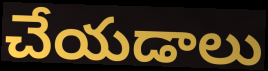
చేయడాలు